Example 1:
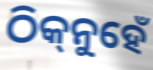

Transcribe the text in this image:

ଠିକ୍‌ନୁହେଁ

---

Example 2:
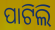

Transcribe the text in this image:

ପାଟିଲି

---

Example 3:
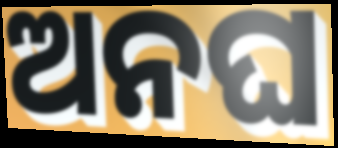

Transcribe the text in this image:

ଅନଘ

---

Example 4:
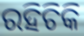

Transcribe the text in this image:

ରହିଚିକି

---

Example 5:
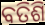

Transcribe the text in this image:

ବତିଶି